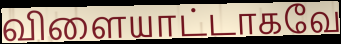
விளையாட்டாகவே